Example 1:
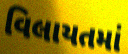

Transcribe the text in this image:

વિલાયતમાં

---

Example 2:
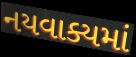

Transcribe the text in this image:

નયવાક્યમાં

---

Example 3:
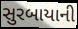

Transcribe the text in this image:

સુરબાયાની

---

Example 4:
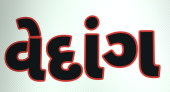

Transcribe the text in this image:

વેદાંગ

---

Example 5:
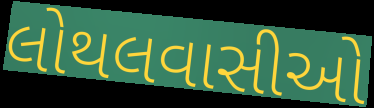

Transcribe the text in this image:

લોથલવાસીઓ